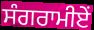
ਸੰਗਰਾਮੀਏਂ